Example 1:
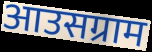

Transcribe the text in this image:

आउसग्राम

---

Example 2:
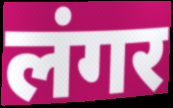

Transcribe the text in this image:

लंगर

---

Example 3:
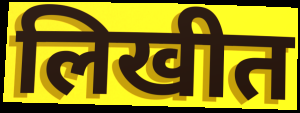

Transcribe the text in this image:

लिखीत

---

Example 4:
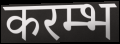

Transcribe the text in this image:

करम्भ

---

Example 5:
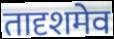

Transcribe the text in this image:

तादृशमेव